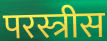
परस्त्रीस